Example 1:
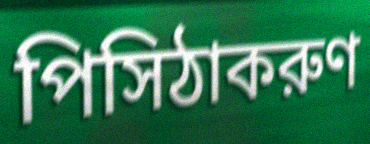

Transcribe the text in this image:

পিসিঠাকরুণ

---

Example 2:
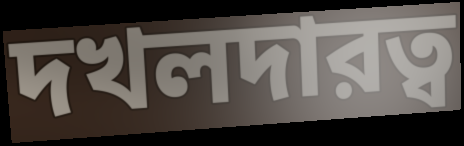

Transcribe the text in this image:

দখলদারত্ব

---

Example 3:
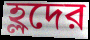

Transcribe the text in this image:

হ্লদের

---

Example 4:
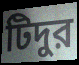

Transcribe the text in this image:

টিদুর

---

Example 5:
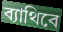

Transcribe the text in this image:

ব্যাথিবে